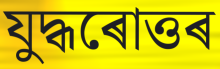
যুদ্ধৰোত্তৰ